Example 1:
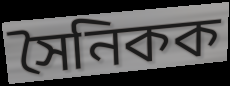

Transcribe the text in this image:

সৈনিকক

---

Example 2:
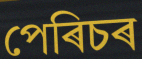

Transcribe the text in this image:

পেৰিচৰ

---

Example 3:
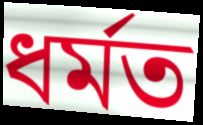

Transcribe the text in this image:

ধৰ্মত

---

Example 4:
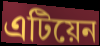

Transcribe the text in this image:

এটিয়েন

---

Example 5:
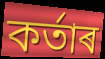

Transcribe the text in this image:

কৰ্তাৰ